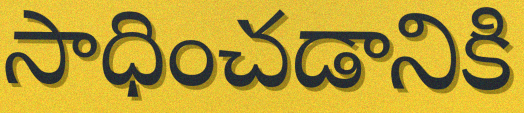
సాధించడానికి